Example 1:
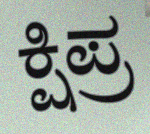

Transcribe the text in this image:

ಕ್ಷಿಪ್ರ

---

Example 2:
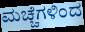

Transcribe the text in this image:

ಮಚ್ಚೆಗಳಿಂದ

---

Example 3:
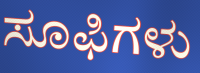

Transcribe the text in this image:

ಸೂಫಿಗಳು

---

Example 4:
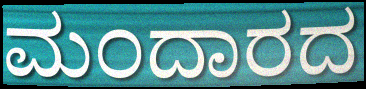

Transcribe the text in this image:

ಮಂದಾರದ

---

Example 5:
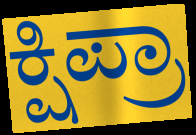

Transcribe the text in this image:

ಕ್ಷಿಪ್ರಾ